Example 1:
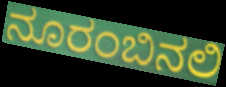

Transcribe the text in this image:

ನೂರಂಬಿನಲಿ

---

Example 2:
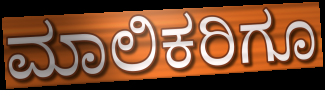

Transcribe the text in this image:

ಮಾಲಿಕರಿಗೂ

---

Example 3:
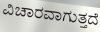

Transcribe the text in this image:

ವಿಚಾರವಾಗುತ್ತದೆ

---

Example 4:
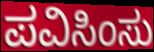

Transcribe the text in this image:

ಪವಿಸಿಂಸು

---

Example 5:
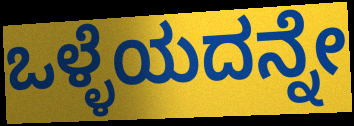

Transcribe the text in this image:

ಒಳ್ಳೆಯದನ್ನೇ